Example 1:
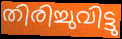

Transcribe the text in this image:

തിരിച്ചുവിട്ടു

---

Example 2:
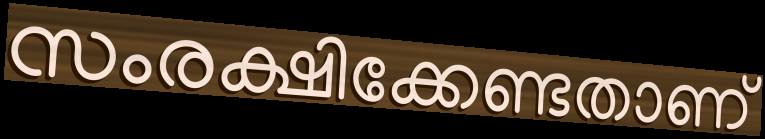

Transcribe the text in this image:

സംരക്ഷിക്കേണ്ടതാണ്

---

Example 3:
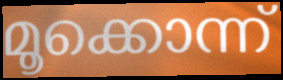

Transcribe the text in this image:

മൂക്കൊന്ന്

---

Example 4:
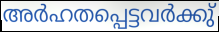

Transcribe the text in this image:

അർഹതപ്പെട്ടവർക്കു്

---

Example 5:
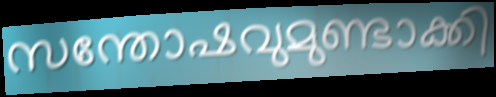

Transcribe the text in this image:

സന്തോഷവുമുണ്ടാക്കി